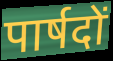
पार्षदों